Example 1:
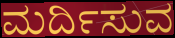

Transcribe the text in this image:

ಮರ್ದಿಸುವ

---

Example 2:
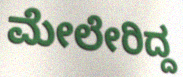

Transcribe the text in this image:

ಮೇಲೇರಿದ್ದ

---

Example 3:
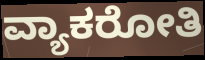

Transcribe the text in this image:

ವ್ಯಾಕರೋತಿ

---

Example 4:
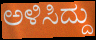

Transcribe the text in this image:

ಅಳಿಸಿದ್ದು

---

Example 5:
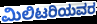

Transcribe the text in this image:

ಮಿಲಿಟರಿಯವರ